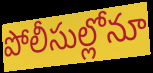
పోలీసుల్లోనూ